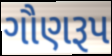
ગૌણરૂપ